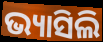
ଭ୍ୟାସିଲି